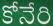
కోనేరి